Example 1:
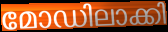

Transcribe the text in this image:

മോഡിലാക്കി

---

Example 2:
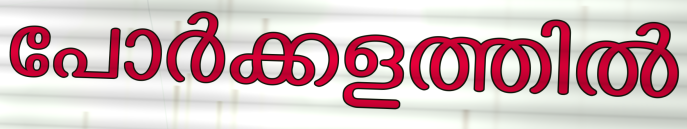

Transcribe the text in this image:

പോർക്കളത്തിൽ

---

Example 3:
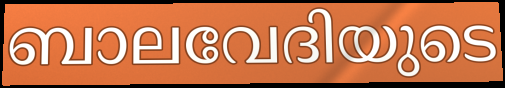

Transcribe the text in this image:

ബാലവേദിയുടെ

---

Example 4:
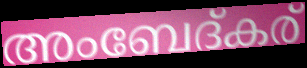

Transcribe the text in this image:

അംബേദ്കര്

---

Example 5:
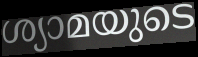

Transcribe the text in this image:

ശ്യാമയുടെ